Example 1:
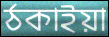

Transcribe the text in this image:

ঠকাইয়া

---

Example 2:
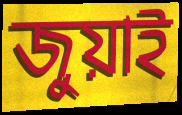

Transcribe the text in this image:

জুয়াই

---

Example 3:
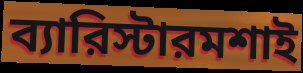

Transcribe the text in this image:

ব্যারিস্টারমশাই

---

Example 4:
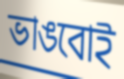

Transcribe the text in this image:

ভাঙবোই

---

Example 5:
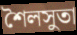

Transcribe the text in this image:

শৈলসুতা